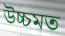
উচ্চমত